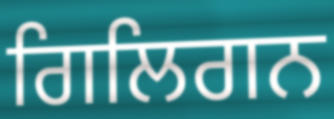
ਗਿਲਿਗਨ